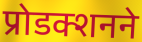
प्रोडक्शनने